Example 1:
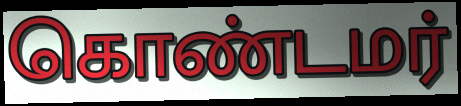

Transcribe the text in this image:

கொண்டமர்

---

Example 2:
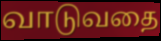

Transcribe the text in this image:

வாடுவதை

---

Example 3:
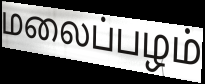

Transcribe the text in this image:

மலைப்பழம்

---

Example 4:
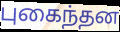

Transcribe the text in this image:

புகைந்தன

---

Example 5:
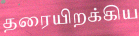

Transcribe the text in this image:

தரையிறக்கிய